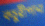
কচুরীপানা